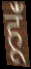
हूंँ